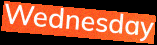
Wednesday